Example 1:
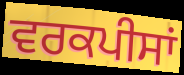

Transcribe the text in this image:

ਵਰਕਪੀਸਾਂ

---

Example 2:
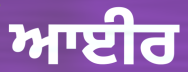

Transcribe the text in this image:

ਆਈਰ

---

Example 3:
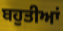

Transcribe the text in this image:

ਬਹੁਤੀਆਂ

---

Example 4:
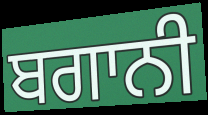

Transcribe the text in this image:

ਬਗਾਨੀ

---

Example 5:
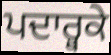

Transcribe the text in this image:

ਪਦਾਰ੍ਥਕੇ